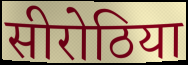
सीरोठिया